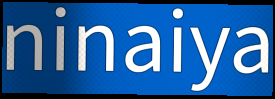
ninaiya